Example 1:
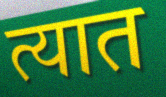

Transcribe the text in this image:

त्यात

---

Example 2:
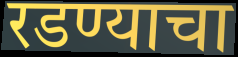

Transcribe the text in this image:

रडण्याचा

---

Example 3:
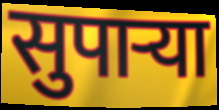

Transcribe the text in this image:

सुपार्‍या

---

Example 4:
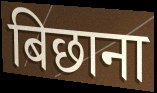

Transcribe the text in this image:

बिछाना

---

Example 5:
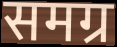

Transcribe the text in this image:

समग्र